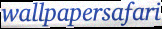
wallpapersafari